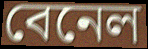
বেনেল